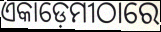
ଏକାଡ଼େମୀଠାରେ